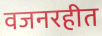
वजनरहीत